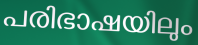
പരിഭാഷയിലും